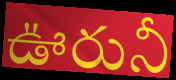
ఊరునీ